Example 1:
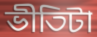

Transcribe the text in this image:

ভীতিটা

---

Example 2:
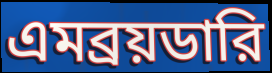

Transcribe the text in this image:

এমব্রয়ডারি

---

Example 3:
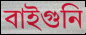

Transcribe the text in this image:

বাইগুনি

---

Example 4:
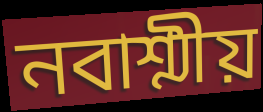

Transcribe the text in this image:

নবাশ্মীয়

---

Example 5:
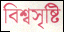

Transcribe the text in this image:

বিশ্বসৃষ্টি